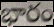
భారం